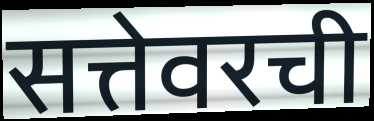
सत्तेवरची